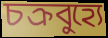
চক্রবুহ্যে